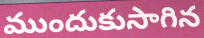
ముందుకుసాగిన